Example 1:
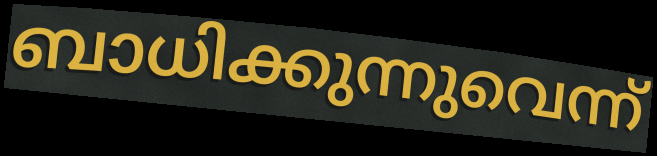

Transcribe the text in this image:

ബാധിക്കുന്നുവെന്ന്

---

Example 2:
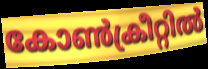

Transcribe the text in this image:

കോൺക്രീറ്റിൽ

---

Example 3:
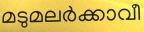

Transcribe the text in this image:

മടുമലർക്കാവീ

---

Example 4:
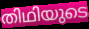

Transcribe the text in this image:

തിഥിയുടെ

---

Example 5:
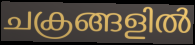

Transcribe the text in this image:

ചക്രങ്ങളിൽ